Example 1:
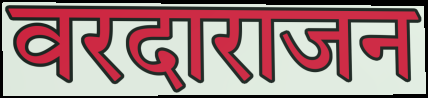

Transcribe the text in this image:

वरदाराजन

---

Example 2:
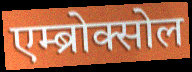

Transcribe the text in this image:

एम्ब्रोक्सोल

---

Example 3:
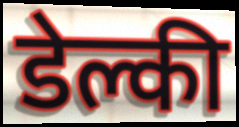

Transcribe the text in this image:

डेल्की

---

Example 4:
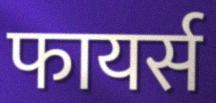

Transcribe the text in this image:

फायर्स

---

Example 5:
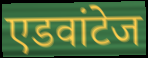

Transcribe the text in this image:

एडवांटेज